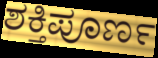
ಶಕ್ತಿಪೂರ್ಣ